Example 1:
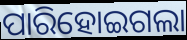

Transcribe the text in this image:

ପାରିହୋଇଗଲା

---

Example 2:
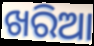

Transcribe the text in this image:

ଖରିଆ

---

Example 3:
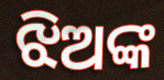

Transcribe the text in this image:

ଝିଅଙ୍କ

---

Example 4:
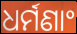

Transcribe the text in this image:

ଧର୍ମଣାଂ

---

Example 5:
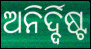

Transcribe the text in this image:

ଅନିର୍ଦ୍ଦିଷ୍ଟ